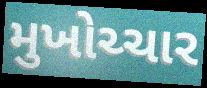
મુખોચ્ચાર